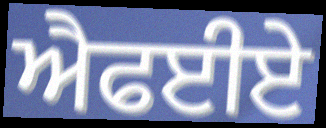
ਐਫਈਏ